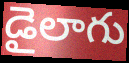
డైలాగు